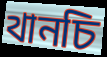
থানচি